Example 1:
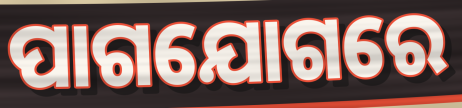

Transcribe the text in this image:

ପାଗଯୋଗରେ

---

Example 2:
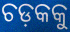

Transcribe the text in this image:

ଚଡ଼କକୁ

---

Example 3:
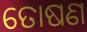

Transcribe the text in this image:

ତୋଷଣ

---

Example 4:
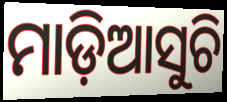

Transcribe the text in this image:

ମାଡ଼ିଆସୁଚି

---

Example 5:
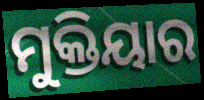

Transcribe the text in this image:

ମୁକ୍ତିୟାର